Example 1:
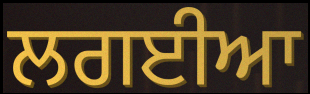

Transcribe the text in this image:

ਲਗਈਆ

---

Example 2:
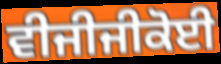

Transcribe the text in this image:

ਵੀਜੀਜੀਕੋਈ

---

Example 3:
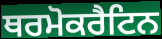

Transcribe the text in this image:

ਥਰਮੋਕਰੈਟਿਨ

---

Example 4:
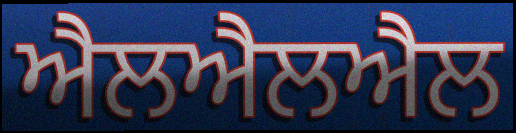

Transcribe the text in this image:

ਐਲਐਲਐਲ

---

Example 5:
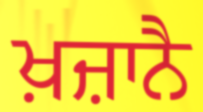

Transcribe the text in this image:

ਖ਼ਜ਼ਾਨੈ